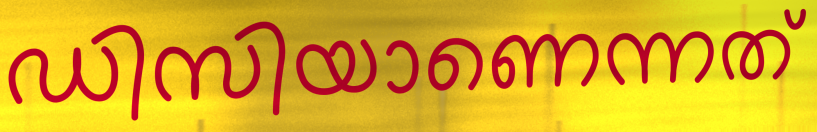
ഡിസിയാണെന്നത്